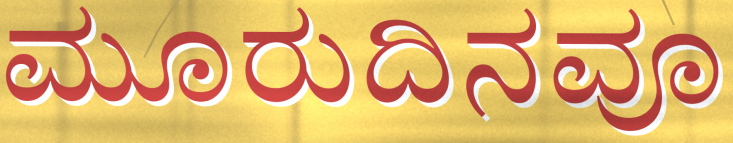
ಮೂರುದಿನವೂ